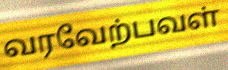
வரவேற்பவள்